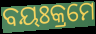
ବୟଃକ୍ରମେ